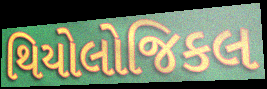
થિયોલોજિકલ